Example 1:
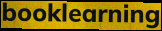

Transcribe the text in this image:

booklearning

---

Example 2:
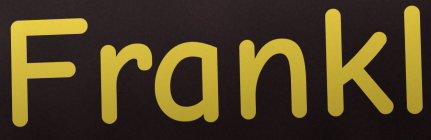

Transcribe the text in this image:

Frankl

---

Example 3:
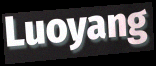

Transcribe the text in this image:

Luoyang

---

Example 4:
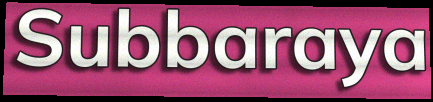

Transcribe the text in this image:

Subbaraya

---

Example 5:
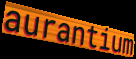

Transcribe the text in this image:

aurantium